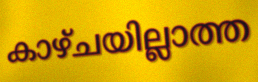
കാഴ്ചയില്ലാത്ത